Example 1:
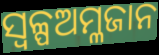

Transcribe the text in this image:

ସ୍ୱଳ୍ପଅମ୍ଳଜାନ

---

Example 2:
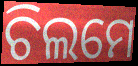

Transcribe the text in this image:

ଚିଲମେ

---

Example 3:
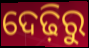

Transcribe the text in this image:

ଦେଢ଼ିରୁ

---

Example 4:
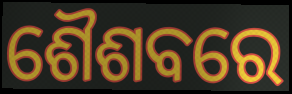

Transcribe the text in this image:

ଶୈଶବରେ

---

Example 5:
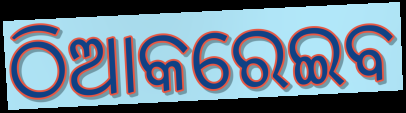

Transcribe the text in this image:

ଠିଆକରେଇବ